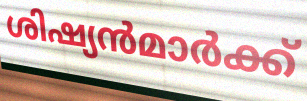
ശിഷ്യൻമാർക്ക്